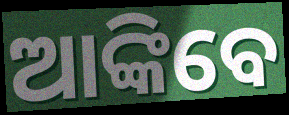
ଆଙ୍କିବେ